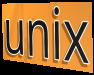
unix